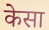
केसा